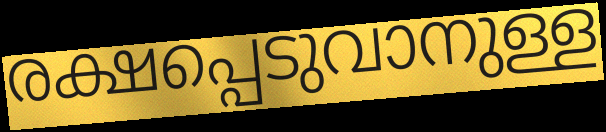
രക്ഷപ്പെടുവാനുള്ള